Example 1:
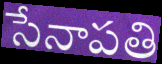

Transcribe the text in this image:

సేనాపతి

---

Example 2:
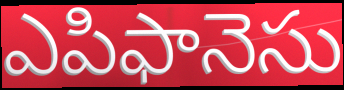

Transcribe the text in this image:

ఎపిఫానెసు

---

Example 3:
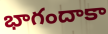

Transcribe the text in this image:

భాగందాకా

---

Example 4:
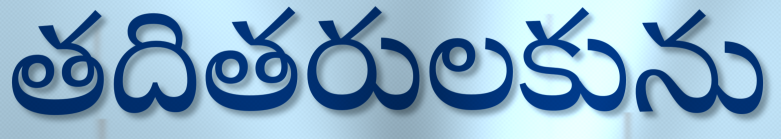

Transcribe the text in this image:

తదితరులకును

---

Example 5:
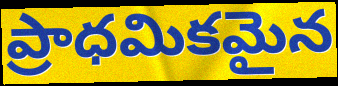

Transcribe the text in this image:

ప్రాధమికమైన